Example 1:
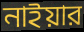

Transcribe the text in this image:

নাইয়ার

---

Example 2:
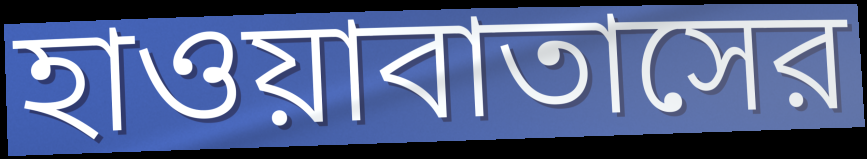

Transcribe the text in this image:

হাওয়াবাতাসের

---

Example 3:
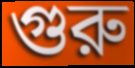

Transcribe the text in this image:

গুরু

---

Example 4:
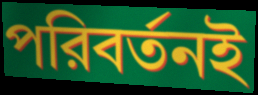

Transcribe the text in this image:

পরিবর্তনই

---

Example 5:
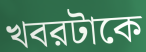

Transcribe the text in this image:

খবরটাকে